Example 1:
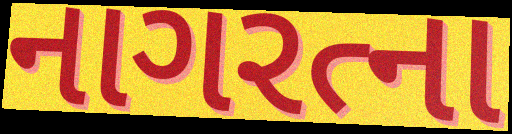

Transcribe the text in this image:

નાગરત્ના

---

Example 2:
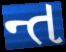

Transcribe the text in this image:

ન્ત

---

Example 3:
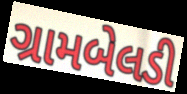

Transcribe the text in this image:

ગ્રામબેલડી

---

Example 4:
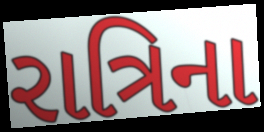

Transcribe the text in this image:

રાત્રિના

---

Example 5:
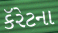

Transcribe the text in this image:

કૅરેટના